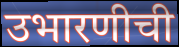
उभारणीची